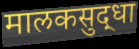
मालकसुद्धा